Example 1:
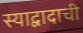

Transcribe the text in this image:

स्याद्वादाची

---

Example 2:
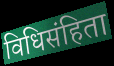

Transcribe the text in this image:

विधिसंहिता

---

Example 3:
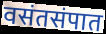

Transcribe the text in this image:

वसंतसंपात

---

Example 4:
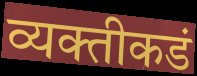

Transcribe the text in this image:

व्यक्तीकडं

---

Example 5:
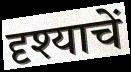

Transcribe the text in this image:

दृश्याचें